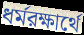
ধর্মরক্ষার্থে